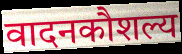
वादनकौशल्य